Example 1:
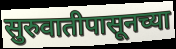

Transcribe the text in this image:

सुरुवातीपासूनच्या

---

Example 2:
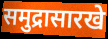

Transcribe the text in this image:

समुद्रासारखे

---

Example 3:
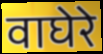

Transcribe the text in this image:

वाघेरे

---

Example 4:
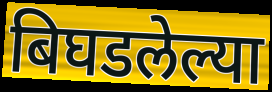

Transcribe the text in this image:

बिघडलेल्या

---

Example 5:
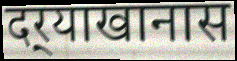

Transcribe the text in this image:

दर्याखानास